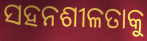
ସହନଶୀଳତାକୁ